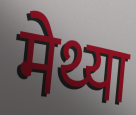
मेथ्या